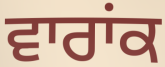
ਵਾਰਾਂਕ